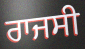
ਰਾਜਸੀ